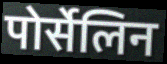
पोर्सेलिन